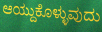
ಆಯ್ದುಕೊಳ್ಳುವುದು